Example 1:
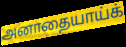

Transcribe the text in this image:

அனாதையாய்க்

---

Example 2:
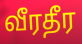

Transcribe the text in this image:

வீரதீர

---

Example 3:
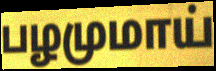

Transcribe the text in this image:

பழமுமாய்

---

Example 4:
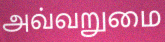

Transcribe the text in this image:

அவ்வறுமை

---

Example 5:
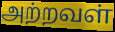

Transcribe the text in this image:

அற்றவள்